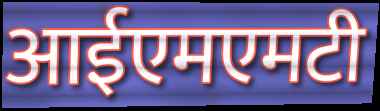
आईएमएमटी